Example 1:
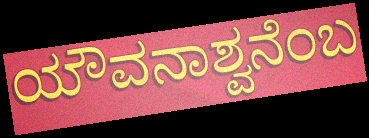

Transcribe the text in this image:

ಯೌವನಾಶ್ವನೆಂಬ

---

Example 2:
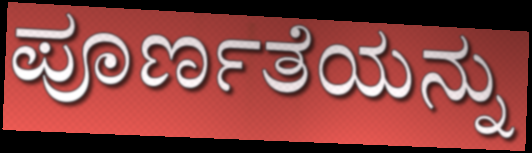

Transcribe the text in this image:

ಪೂರ್ಣತೆಯನ್ನು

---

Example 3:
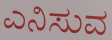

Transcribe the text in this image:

ಎನಿಸುವ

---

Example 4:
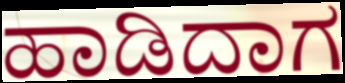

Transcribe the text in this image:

ಹಾಡಿದಾಗ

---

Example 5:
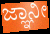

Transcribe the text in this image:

ಜ್ಞಾನೀ